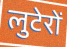
लुटेरों